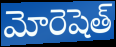
మోరెషెత్